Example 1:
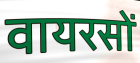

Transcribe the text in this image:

वायरसों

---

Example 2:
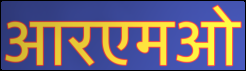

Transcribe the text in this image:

आरएमओ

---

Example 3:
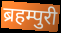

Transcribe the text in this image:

ब्रहम्पुरी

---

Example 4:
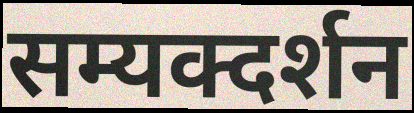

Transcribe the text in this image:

सम्यक्दर्शन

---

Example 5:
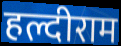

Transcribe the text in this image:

हल्दीराम